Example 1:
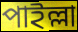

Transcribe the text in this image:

পাইল্লা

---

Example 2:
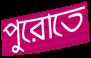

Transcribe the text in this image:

পুরোতে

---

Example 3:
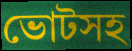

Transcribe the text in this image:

ভোটসহ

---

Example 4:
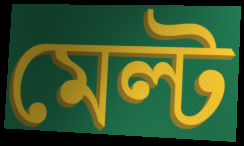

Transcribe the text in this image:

মেল্ট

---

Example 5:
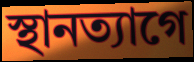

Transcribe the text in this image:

স্থানত্যাগে